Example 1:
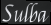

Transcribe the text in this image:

Sulba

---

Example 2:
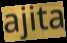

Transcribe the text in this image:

ajita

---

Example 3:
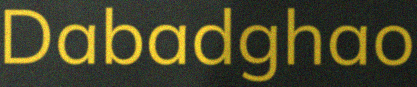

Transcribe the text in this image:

Dabadghao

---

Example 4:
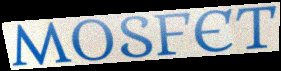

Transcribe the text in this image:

MOSFET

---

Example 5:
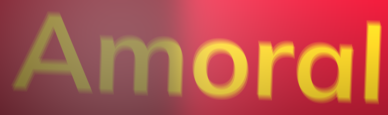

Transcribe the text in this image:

Amoral